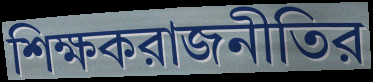
শিক্ষকরাজনীতির